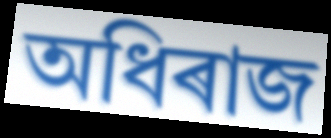
অধিৰাজ